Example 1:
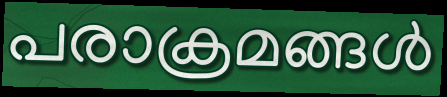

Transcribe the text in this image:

പരാക്രമങ്ങൾ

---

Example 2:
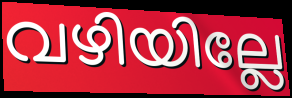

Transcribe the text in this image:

വഴിയില്ലേ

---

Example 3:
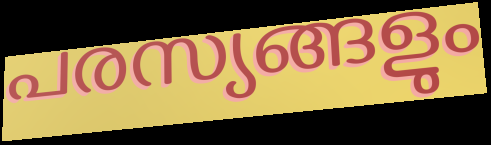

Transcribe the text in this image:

പരസ്യങ്ങളും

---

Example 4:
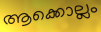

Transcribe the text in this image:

ആക്കൊല്ലം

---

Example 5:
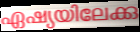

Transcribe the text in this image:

ഏഷ്യയിലേക്കു